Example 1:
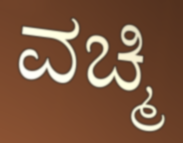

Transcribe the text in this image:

ವಚ್ಮಿ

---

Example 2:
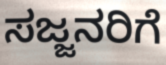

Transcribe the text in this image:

ಸಜ್ಜನರಿಗೆ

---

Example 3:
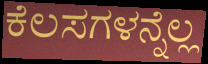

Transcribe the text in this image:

ಕೆಲಸಗಳನ್ನೆಲ್ಲ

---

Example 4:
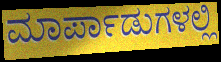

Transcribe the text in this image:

ಮಾರ್ಪಾಡುಗಳಲ್ಲಿ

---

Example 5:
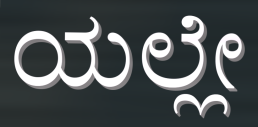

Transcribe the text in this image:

ಯಲ್ಲೇ